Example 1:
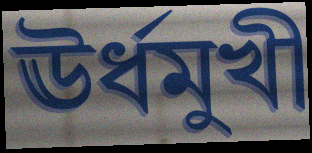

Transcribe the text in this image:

ঊৰ্ধমুখী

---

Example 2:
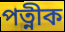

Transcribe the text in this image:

পত্নীক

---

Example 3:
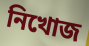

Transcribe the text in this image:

নিখোজ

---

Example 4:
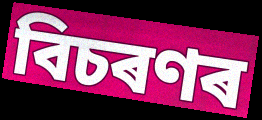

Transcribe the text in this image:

বিচৰণৰ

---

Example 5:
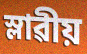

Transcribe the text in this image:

স্লাৱীয়